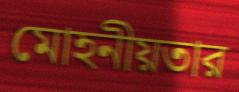
মোহনীয়তার